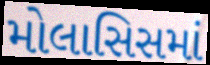
મોલાસિસમાં